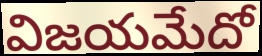
విజయమేదో